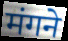
मंगने